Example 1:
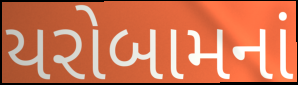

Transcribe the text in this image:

યરોબામનાં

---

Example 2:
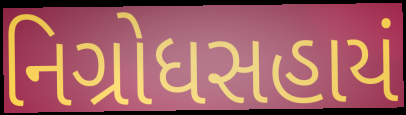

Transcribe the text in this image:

નિગ્રોધસહાયં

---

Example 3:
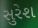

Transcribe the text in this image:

સુરેશ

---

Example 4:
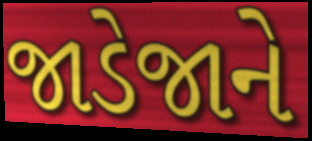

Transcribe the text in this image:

જાડેજાને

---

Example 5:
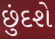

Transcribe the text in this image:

છુંદશે